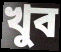
খুব